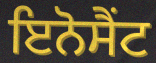
ਇਨੋਸੈਂਟ